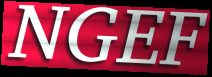
NGEF